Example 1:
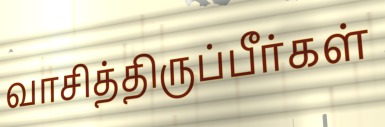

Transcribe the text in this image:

வாசித்திருப்பீர்கள்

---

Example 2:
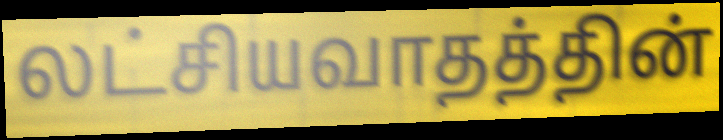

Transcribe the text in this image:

லட்சியவாதத்தின்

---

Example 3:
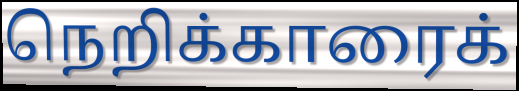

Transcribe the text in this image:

நெறிக்காரைக்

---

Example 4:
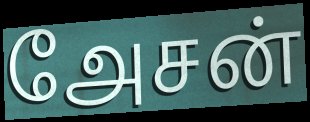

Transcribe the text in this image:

அேசன்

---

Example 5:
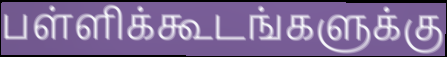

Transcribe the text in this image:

பள்ளிக்கூடங்களுக்கு